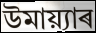
উমায়্যাৰ